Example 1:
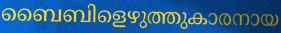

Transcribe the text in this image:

ബൈബിളെഴുത്തുകാരനായ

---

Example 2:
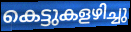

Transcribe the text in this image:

കെട്ടുകളഴിച്ചു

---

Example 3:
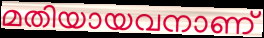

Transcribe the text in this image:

മതിയായവനാണ്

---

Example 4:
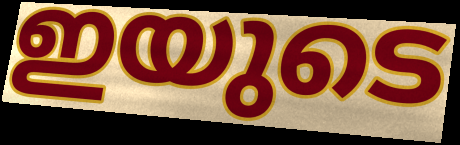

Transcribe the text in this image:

ഇയുടെ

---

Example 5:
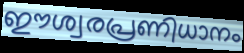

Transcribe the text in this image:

ഈശ്വരപ്രണിധാനം